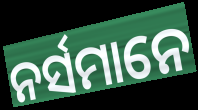
ନର୍ସମାନେ